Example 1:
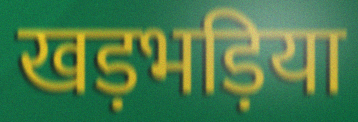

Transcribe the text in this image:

खड़भड़िया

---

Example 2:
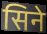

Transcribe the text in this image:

सिने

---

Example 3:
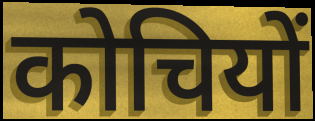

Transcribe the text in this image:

कोचियों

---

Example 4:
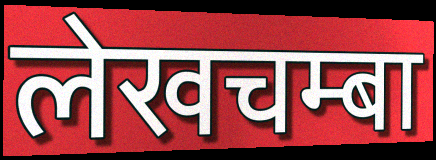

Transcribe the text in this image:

लेखचम्बा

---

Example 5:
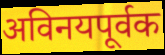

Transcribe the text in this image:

अविनयपूर्वक